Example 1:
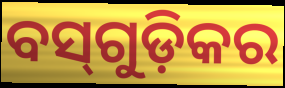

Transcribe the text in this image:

ବସ୍‌ଗୁଡ଼ିକର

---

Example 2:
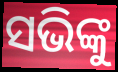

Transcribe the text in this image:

ସଭିଙ୍କୁ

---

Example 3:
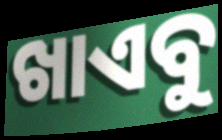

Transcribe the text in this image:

ଖାଏବୁ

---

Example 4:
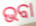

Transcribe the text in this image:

ଭବା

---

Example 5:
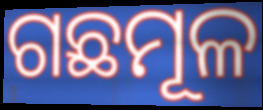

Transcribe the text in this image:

ଗଛମୂଳ